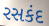
રસકંદ